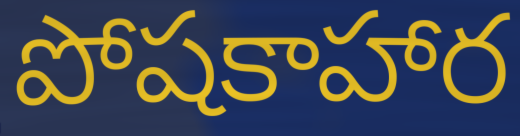
పోషకాహార